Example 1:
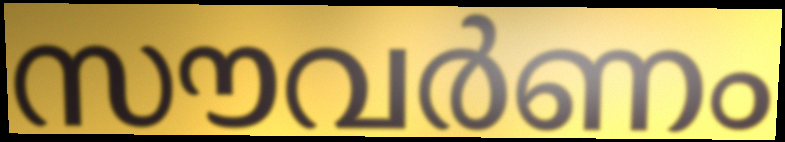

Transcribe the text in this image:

സൗവർണം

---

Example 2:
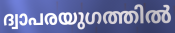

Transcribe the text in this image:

ദ്വാപരയുഗത്തിൽ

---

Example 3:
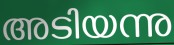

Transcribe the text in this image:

അടിയന്നു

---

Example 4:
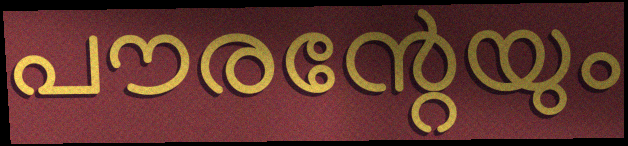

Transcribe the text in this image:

പൗരന്റേയും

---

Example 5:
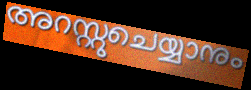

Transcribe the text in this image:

അറസ്റ്റുചെയ്യാനും